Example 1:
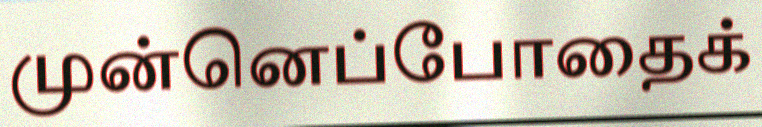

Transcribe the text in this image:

முன்னெப்போதைக்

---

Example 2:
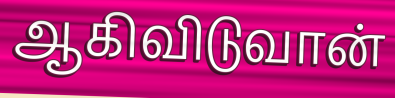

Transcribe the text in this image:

ஆகிவிடுவான்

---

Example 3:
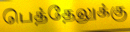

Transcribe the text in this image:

பெத்தேலுக்கு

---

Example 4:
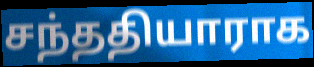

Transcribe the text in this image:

சந்ததியாராக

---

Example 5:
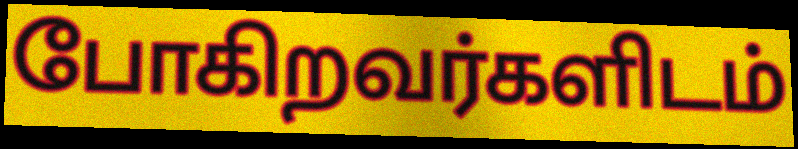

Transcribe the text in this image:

போகிறவர்களிடம்